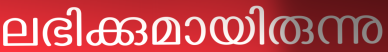
ലഭിക്കുമായിരുന്നു